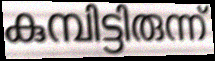
കുമ്പിട്ടിരുന്ന്